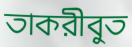
তাকরীবুত